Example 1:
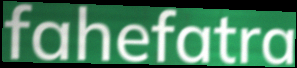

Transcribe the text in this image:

fahefatra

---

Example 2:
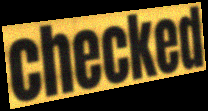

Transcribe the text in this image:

checked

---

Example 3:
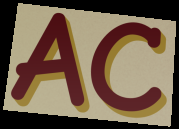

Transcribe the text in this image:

AC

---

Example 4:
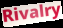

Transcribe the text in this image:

Rivalry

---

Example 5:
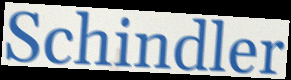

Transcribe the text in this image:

Schindler